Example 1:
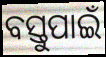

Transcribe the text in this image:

ବସ୍ତୁପାଇଁ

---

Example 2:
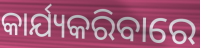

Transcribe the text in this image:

କାର୍ଯ୍ୟକରିବାରେ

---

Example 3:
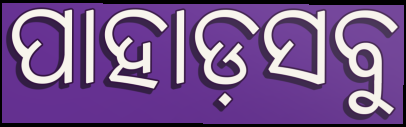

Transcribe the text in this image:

ପାହାଡ଼ସବୁ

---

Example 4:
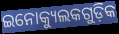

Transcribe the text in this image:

ଇନୋକ୍ଯୁଲକଗୁଡ଼ିକ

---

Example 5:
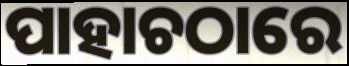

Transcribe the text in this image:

ପାହାଚଠାରେ